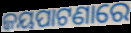
ଜୟପାଟଣାରେ